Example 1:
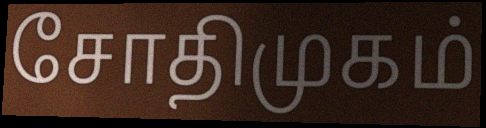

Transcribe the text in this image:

சோதிமுகம்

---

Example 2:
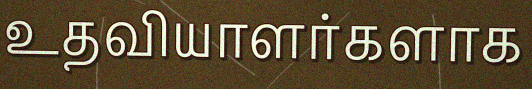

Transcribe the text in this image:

உதவியாளர்களாக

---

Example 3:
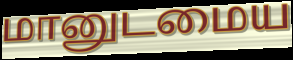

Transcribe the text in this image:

மானுடமைய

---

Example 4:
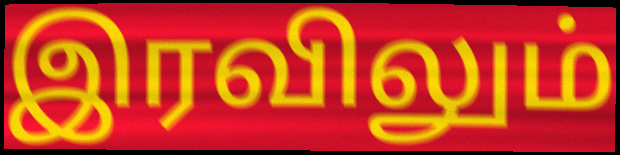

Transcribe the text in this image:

இரவிலும்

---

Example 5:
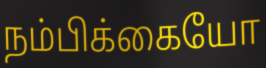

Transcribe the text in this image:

நம்பிக்கையோ